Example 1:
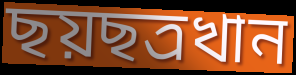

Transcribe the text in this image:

ছয়ছত্রখান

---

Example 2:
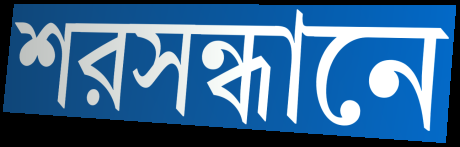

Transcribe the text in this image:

শরসন্ধানে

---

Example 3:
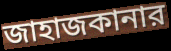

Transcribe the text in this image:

জাহাজকানার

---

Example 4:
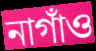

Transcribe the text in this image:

নাগাঁও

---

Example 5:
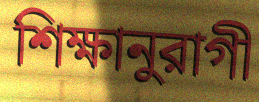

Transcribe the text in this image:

শিক্ষানুরাগী